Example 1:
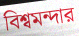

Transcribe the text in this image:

বিশ্বমন্দার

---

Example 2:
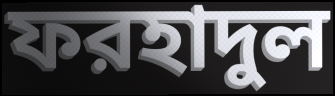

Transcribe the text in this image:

ফরহাদুল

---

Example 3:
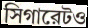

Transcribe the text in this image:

সিগারেটও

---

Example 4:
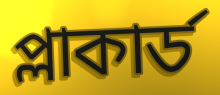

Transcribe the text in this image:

প্লাকার্ড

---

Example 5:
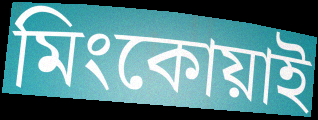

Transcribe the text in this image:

মিংকোয়াই